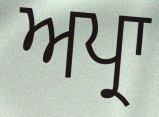
ਅਪ੍ਰਾ